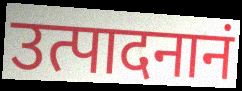
उत्पादनानं